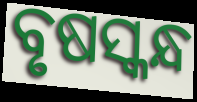
ବୃଷସ୍କନ୍ଧ